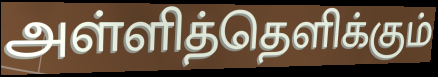
அள்ளித்தெளிக்கும்